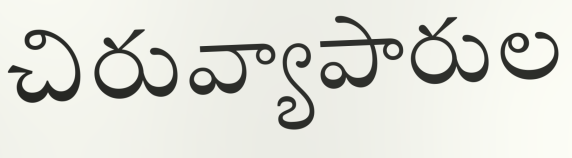
చిరువ్యాపారుల